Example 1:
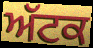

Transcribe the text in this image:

ਅੱਟਕ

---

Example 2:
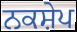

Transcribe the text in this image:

ਨਕਸ਼ੇਪ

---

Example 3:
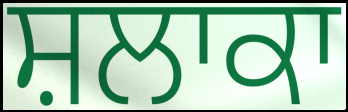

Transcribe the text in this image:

ਸ਼ਲਾਕਾ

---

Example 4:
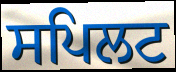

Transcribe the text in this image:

ਸਪਿਲਟ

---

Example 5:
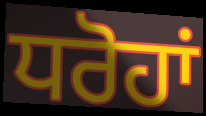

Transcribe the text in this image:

ਧਰੋਹਾਂ